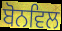
ਬੋਨਵਿਲ